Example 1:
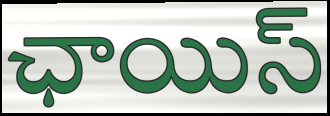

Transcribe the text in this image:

ఛాయిస్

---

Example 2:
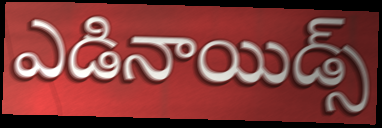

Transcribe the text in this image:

ఎడినాయిడ్స్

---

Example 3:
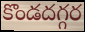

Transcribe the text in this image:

కొండదగ్గర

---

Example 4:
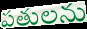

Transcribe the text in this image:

పతులను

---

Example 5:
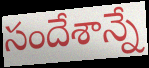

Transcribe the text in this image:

సందేశాన్నే